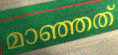
മാഞ്ഞത്